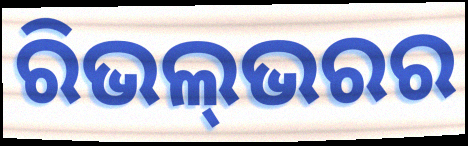
ରିଭଲ୍‍ଭରର